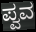
ಪ್ವವ